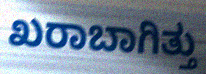
ಖರಾಬಾಗಿತ್ತು